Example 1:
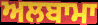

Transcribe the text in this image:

ਅਲਬਾਮਾ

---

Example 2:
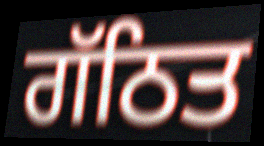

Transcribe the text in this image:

ਗੱਠਿਤ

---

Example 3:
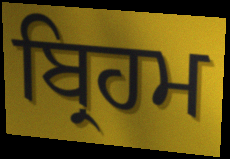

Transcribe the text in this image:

ਬ੍ਰਿਹਮ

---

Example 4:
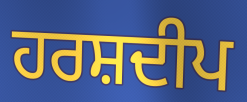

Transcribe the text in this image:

ਹਰਸ਼ਦੀਪ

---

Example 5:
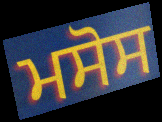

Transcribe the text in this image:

ਮਸੋਸ